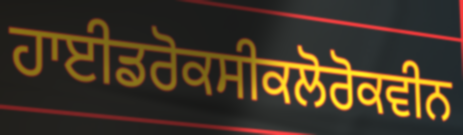
ਹਾਈਡਰੋਕਸੀਕਲੋਰੋਕਵੀਨ